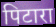
पिटारा